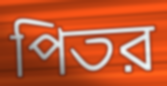
পিতর